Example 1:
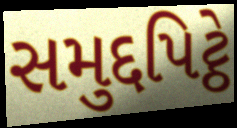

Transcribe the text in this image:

સમુદ્દપિટ્ઠે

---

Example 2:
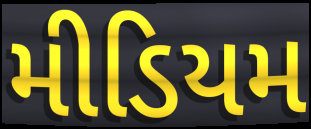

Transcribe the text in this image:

મીડિયમ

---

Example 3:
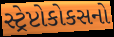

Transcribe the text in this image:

સ્ટ્રેપ્ટોકોકસનો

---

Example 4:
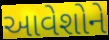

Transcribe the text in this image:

આવેશોને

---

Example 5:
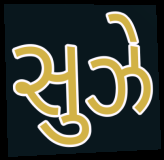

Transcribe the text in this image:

સુઝે